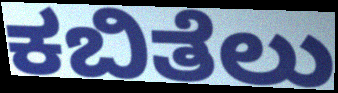
ಕಬಿತೆಲು